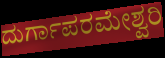
ದುರ್ಗಾಪರಮೇಶ್ವರಿ